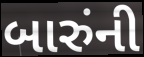
બારુંની